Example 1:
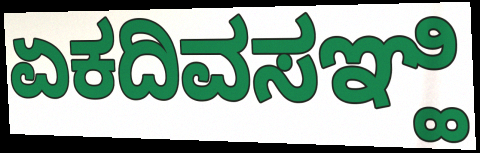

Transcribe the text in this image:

ಏಕದಿವಸಞ್ಹಿ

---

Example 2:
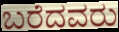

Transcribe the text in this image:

ಬರೆದವರು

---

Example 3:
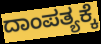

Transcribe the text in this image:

ದಾಂಪತ್ಯಕ್ಕೆ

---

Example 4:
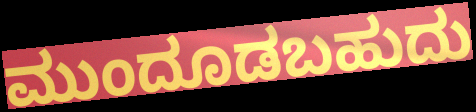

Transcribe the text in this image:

ಮುಂದೂಡಬಹುದು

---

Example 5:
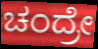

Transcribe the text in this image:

ಚಂದ್ರೇ